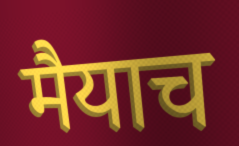
मैयाच